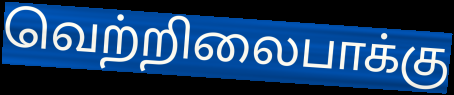
வெற்றிலைபாக்கு